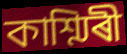
কাশ্মিৰী